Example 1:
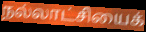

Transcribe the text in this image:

நல்லாட்சியைக்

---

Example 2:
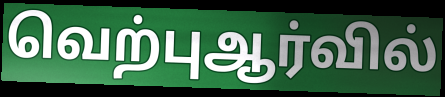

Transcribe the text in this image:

வெற்புஆர்வில்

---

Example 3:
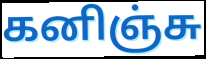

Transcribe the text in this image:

கனிஞ்சு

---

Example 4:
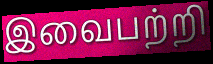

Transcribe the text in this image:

இவைபற்றி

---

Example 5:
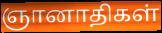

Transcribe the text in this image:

ஞானாதிகள்